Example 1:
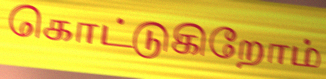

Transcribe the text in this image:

கொட்டுகிறோம்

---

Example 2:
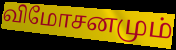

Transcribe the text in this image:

விமோசனமும்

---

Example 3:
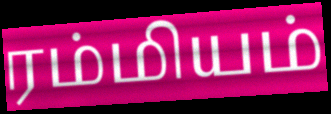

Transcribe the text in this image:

ரம்மியம்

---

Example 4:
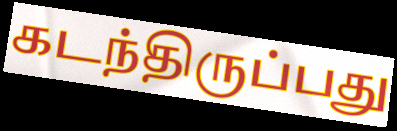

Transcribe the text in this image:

கடந்திருப்பது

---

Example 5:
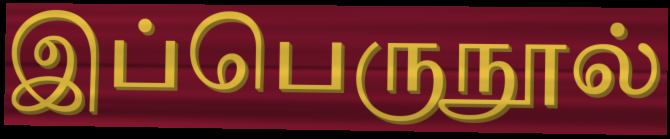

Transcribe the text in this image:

இப்பெருநூல்